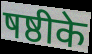
षष्ठीके